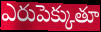
ఎరుపెక్కుతూ